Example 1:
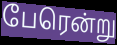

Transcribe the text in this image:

பேரென்று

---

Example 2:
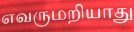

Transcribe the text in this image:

எவருமறியாது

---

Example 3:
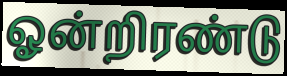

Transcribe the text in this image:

ஓன்றிரண்டு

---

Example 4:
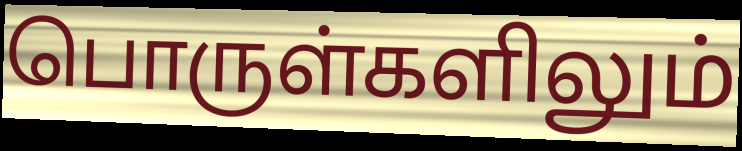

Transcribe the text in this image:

பொருள்களிலும்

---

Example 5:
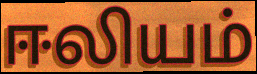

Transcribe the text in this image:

ஈலியம்